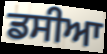
ਡਸੀਆ